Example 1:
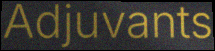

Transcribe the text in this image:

Adjuvants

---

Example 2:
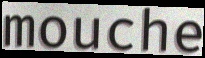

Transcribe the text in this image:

mouche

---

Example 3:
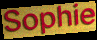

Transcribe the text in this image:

Sophie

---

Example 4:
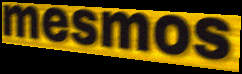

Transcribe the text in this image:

mesmos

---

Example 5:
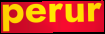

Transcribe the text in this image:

perur